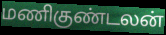
மணிகுண்டலன்